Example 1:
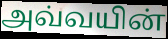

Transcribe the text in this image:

அவ்வயின்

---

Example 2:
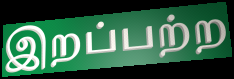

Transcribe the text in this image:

இறப்பற்ற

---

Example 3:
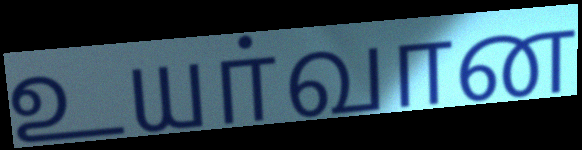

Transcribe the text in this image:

உயர்வான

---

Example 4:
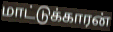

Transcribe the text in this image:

மாட்டுக்காரன்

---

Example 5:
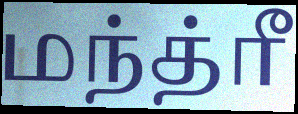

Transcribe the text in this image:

மந்த்ரீ